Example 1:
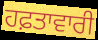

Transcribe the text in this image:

ਹਫ਼ਤਾਵਾਰੀ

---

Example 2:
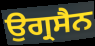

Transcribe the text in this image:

ਉਗ੍ਰਸੈਨ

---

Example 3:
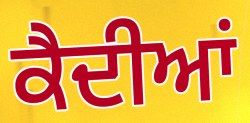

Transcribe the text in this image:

ਕੈਦੀਆਂ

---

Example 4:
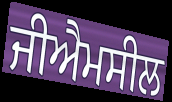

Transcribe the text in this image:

ਜੀਐਮਸੀਲ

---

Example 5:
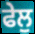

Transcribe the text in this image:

ਫੇਲੁ